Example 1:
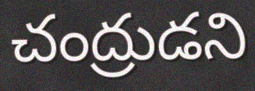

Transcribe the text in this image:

చంద్రుడని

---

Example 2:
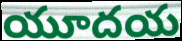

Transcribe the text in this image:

యూదయ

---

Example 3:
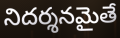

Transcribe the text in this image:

నిదర్శనమైతే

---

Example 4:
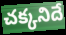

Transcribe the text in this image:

చక్కనిదే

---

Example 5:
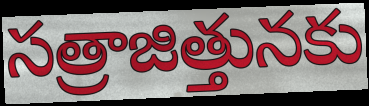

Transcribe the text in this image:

సత్రాజిత్తునకు